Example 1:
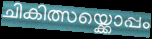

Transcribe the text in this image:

ചികിത്സയ്ക്കൊപ്പം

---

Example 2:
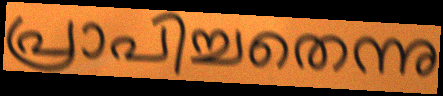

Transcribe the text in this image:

പ്രാപിച്ചതെന്നു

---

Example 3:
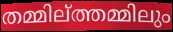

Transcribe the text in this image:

തമ്മില്ത്തമ്മിലും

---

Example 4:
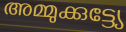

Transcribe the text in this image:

അമ്മുക്കുട്ട്യേ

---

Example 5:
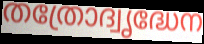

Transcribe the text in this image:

തത്രോദ്വൃദ്ധേന